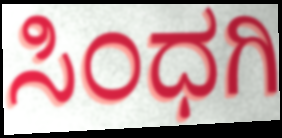
ಸಿಂಧಗಿ